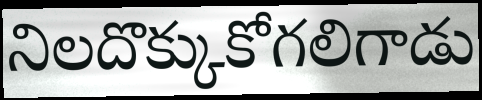
నిలదొక్కుకోగలిగాడు